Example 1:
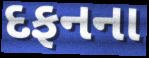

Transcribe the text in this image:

દફનના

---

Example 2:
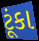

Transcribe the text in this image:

ટૂંકા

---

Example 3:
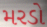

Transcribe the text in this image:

મરડો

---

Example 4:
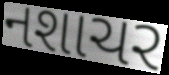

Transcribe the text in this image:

નશાચર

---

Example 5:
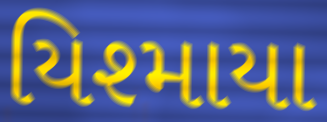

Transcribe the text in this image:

યિશ્માયા